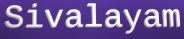
Sivalayam